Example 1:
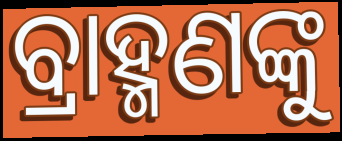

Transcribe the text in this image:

ବ୍ରାହ୍ମଣଙ୍କୁ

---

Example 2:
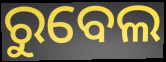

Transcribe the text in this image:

ରୁବେଲ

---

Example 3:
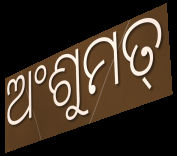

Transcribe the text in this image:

ଅଂଶୁମତ୍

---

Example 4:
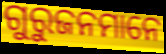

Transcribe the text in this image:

ଗୁରୁଜନମାନେ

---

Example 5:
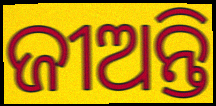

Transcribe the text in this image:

ଜୀଅନ୍ତି